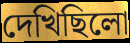
দেখিছিলো